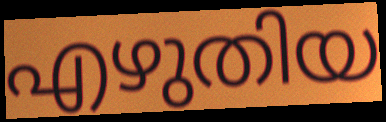
എഴുതിയ